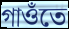
গাওঁতে